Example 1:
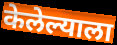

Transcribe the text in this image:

केलेल्याला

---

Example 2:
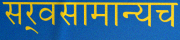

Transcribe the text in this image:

सर्वसामान्यच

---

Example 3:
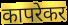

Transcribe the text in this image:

कापरेकर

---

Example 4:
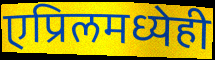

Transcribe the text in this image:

एप्रिलमध्येही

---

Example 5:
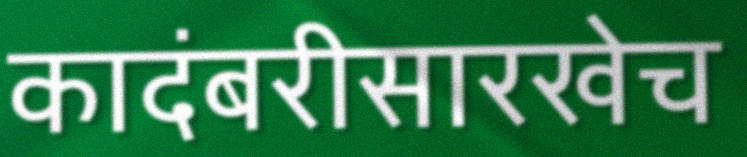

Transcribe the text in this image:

कादंबरीसारखेच